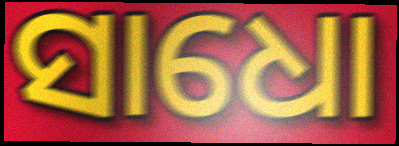
ସାଧୋ